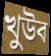
খুউব